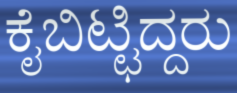
ಕೈಬಿಟ್ಟಿದ್ದರು